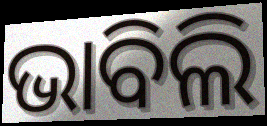
ଭାବିଲି